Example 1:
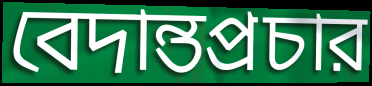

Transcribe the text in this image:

বেদান্তপ্রচার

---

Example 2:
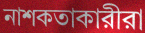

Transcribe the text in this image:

নাশকতাকারীরা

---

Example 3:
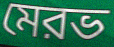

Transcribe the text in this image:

মেরভ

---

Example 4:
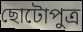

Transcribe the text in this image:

ছোটোপুত্র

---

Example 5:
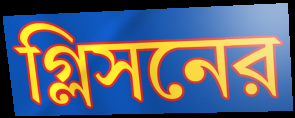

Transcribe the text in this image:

গ্লিসনের